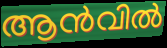
ആൻവിൽ